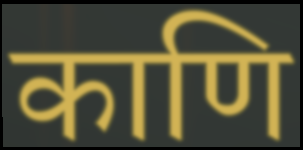
काणि